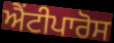
ਐਂਟੀਪਾਰੋਸ